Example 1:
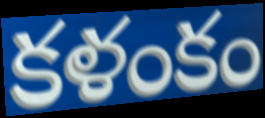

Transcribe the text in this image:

కళంకం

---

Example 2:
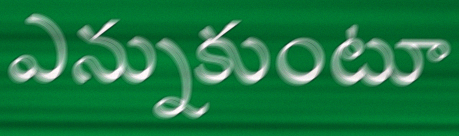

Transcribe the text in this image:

ఎన్నుకుంటూ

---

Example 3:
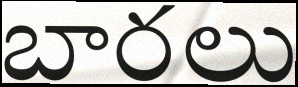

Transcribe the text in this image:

బారలు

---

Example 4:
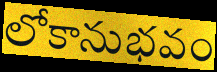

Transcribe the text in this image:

లోకానుభవం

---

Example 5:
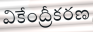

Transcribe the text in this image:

వికేంద్రీకరణ